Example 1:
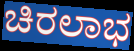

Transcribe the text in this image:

ಚಿರಲಾಭ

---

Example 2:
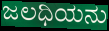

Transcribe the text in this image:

ಜಲಧಿಯನು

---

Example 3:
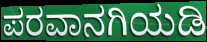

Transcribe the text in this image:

ಪರವಾನಗಿಯಡಿ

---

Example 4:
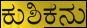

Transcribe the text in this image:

ಕುಶಿಕನು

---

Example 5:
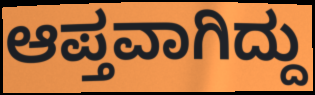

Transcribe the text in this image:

ಆಪ್ತವಾಗಿದ್ದು